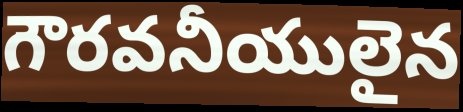
గౌరవనీయులైన